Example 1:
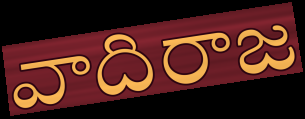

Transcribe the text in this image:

వాదిరాజ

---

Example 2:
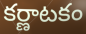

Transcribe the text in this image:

కర్ణాటకం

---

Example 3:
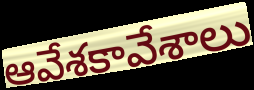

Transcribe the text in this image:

ఆవేశకావేశాలు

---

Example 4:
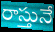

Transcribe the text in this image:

రాస్తునే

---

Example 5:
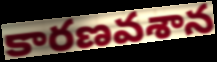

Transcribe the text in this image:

కారణవశాన